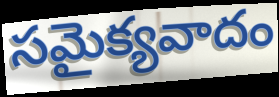
సమైక్యవాదం